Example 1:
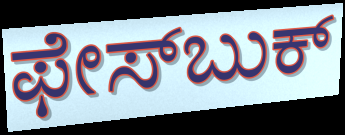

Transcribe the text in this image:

ಫೇಸ್‌ಬುಕ್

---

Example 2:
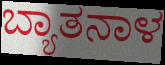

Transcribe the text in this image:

ಬ್ಯಾತನಾಳ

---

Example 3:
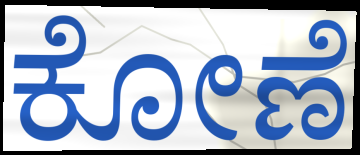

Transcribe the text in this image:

ಕೋಣೆ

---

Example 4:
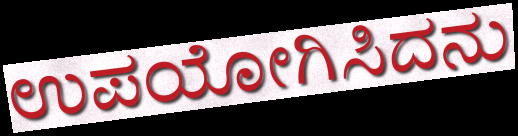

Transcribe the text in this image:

ಉಪಯೋಗಿಸಿದನು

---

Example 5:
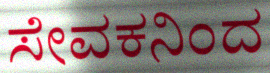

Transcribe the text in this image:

ಸೇವಕನಿಂದ